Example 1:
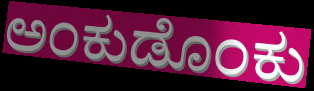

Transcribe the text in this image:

ಅಂಕುಡೊಂಕು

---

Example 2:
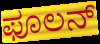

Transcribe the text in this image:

ಫೂಲನ್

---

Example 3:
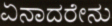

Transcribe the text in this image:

ಏನಾದರೇನು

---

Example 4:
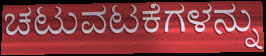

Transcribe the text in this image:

ಚಟುವಟಕೆಗಳನ್ನು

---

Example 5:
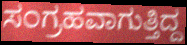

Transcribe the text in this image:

ಸಂಗ್ರಹವಾಗುತ್ತಿದ್ದ